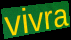
vivra